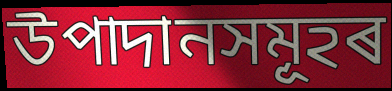
উপাদানসমূহৰ